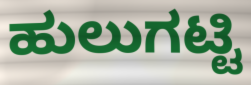
ಹುಲುಗಟ್ಟಿ